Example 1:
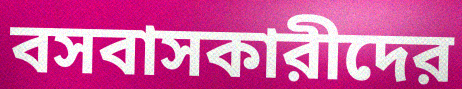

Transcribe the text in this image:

বসবাসকারীদের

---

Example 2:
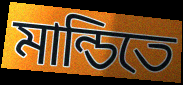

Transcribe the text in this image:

মান্ডিতে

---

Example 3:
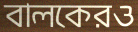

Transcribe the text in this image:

বালকেরও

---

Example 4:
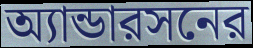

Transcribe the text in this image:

অ্যান্ডারসনের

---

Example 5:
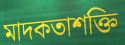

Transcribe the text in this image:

মাদকতাশক্তি